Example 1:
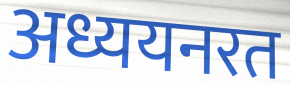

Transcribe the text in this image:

अध्ययनरत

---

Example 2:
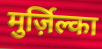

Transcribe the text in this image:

मुर्ज़िल्का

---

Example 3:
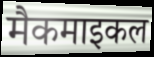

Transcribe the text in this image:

मैकमाइकल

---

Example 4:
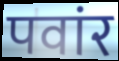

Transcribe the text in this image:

पवांर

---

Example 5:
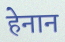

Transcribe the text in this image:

हेनान